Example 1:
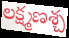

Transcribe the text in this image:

లక్ష్మణశ్చ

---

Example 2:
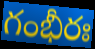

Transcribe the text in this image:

గంభీరః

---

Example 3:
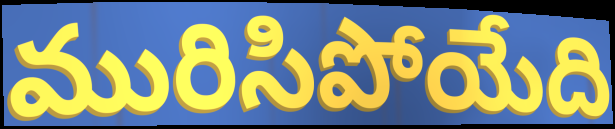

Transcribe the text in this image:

మురిసిపోయేది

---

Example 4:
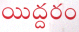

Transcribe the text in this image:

యిద్దరం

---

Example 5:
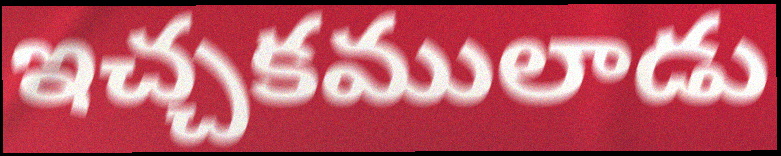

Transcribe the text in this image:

ఇచ్చకములాడు